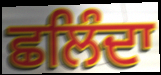
ਛਲਿੰਦਾ